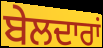
ਬੇਲਦਾਰਾਂ